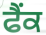
ਫੈਂਕ